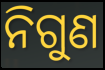
ନିଗୁଣ